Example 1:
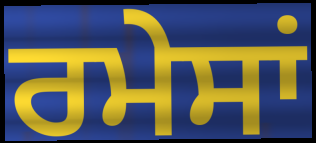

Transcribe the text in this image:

ਰਮੇਸਾਂ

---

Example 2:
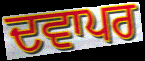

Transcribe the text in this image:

ਦਵਾਪਰ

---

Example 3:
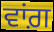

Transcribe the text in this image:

ਵਾਂਗ਼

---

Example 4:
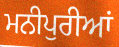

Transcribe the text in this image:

ਮਨੀਪੁਰੀਆਂ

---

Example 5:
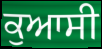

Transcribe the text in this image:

ਕੁਆਸੀ